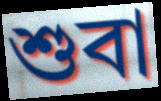
শুবা